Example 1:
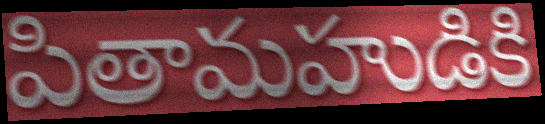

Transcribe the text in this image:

పితామహుడికి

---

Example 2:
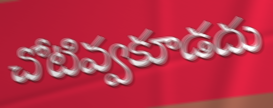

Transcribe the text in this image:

చోటివ్వకూడదు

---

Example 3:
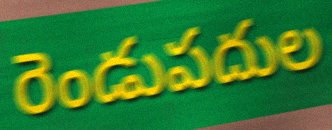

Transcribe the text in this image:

రెండుపదుల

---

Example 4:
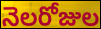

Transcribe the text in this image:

నెలరోజుల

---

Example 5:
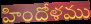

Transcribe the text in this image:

హిందోళము